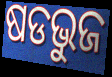
ଷଡଭୁଜ